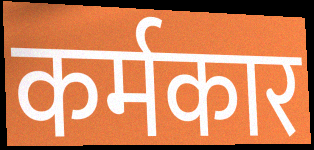
कर्मकार